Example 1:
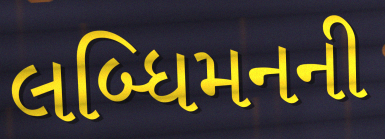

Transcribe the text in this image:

લબ્ધિમનની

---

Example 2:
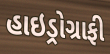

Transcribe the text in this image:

હાઇડ્રોગ્રાફી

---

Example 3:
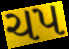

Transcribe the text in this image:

ચપ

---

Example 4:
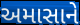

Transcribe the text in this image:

અમાસાને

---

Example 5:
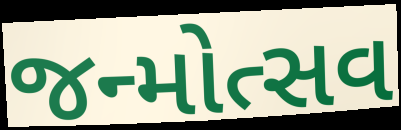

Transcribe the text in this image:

જન્મોત્સવ